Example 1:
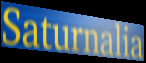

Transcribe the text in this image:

Saturnalia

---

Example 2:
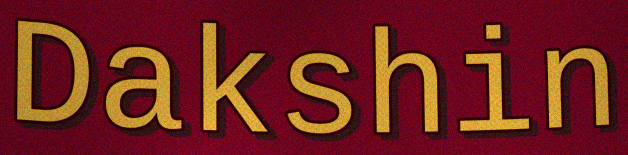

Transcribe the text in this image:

Dakshin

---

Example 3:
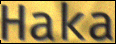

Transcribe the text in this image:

Haka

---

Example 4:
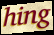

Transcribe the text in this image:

hing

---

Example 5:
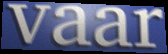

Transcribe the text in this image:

vaar